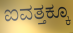
ಐವತ್ತಕ್ಕೂ